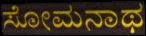
ಸೋಮನಾಥ